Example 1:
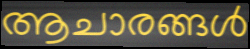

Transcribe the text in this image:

ആചാരങ്ങൾ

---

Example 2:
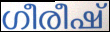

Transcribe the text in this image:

ഗീരീഷ്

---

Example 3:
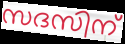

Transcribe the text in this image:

സദസിന്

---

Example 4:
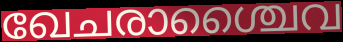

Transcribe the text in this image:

ഖേചരാശ്ചൈവ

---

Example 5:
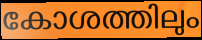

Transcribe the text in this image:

കോശത്തിലും